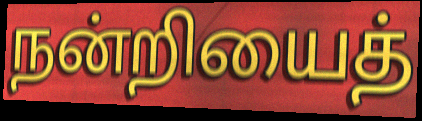
நன்றியைத்